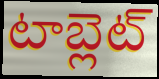
టాబ్లెట్